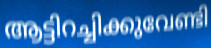
ആട്ടിറച്ചിക്കുവേണ്ടി